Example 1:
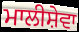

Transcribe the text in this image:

ਮਾਲੀਸ਼ੇਵਾ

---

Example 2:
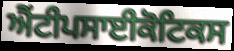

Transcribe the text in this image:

ਐਂਟੀਪਸਾਈਕੋਟਿਕਸ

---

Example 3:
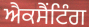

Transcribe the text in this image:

ਐਕਸੈਂਟਿੰਗ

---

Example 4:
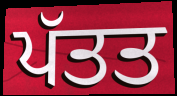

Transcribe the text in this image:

ਪੱਤਤ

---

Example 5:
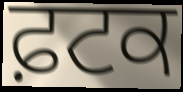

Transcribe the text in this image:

ਫ਼ਟਕ